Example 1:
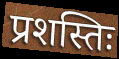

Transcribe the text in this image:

प्रशस्तिः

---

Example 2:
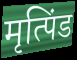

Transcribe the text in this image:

मृत्पिंड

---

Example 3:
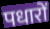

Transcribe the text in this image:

पधारों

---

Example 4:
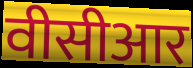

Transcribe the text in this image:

वीसीआर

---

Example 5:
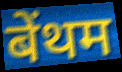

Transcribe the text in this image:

बेंथम